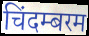
चिंदम्बरम